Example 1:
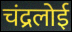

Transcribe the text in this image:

चंद्रलोई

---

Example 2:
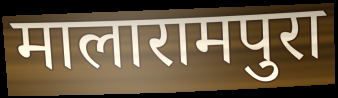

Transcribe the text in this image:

मालारामपुरा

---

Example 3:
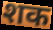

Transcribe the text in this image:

शक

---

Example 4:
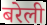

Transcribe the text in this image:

बरेली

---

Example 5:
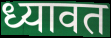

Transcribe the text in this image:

ध्यावत